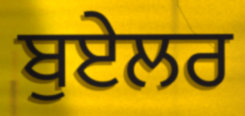
ਬੁਏਲਰ